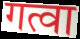
गत्वा